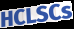
HCLSCs